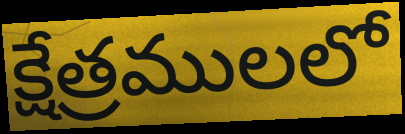
క్షేత్రములలో